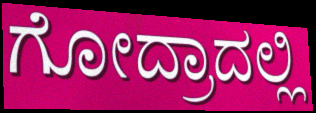
ಗೋದ್ರಾದಲ್ಲಿ